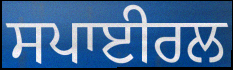
ਸਪਾਈਰਲ